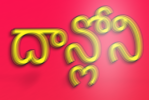
దాన్లోని